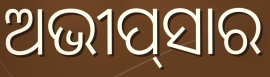
ଅଭୀପ୍‌ସାର